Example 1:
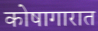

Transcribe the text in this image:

कोषागारात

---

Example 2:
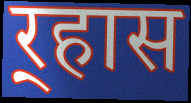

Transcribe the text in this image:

र्हास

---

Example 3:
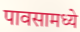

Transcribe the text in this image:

पावसामध्ये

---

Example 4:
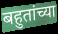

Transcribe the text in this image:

बहुतांच्या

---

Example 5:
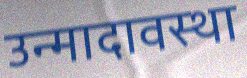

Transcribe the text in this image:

उन्मादावस्था